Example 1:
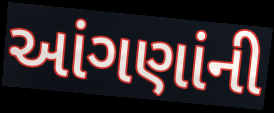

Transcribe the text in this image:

આંગણાંની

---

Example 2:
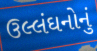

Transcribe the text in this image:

ઉલ્લંઘનોનું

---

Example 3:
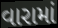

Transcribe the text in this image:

વારામાં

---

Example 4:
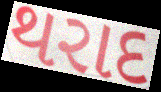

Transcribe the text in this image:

થરાદ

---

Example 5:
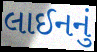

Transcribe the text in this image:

લાઈનનું